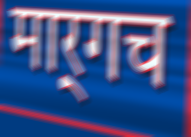
मार्गच